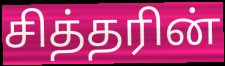
சித்தரின்